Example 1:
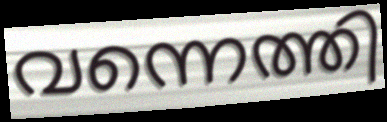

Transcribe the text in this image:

വന്നെത്തി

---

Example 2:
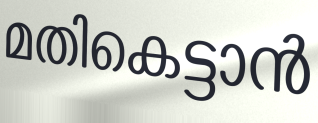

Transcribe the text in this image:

മതികെട്ടാൻ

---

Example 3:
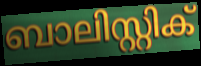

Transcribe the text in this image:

ബാലിസ്റ്റിക്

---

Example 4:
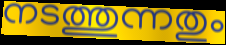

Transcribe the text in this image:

നടത്തുന്നതും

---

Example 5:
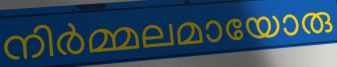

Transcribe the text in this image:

നിർമ്മലമായോരു